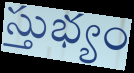
స్తుభ్యం